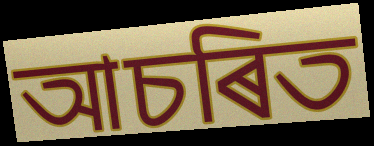
আচৰিত